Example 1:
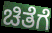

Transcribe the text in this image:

ಚಿತೆಗೆ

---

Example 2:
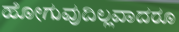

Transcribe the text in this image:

ಹೋಗುವುದಿಲ್ಲವಾದರೂ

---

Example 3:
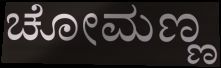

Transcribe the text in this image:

ಚೋಮಣ್ಣ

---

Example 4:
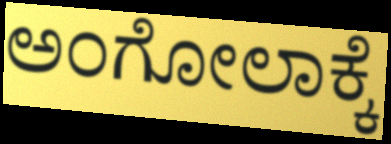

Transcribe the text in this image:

ಅಂಗೋಲಾಕ್ಕೆ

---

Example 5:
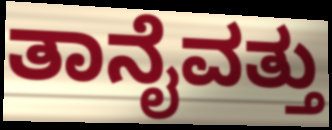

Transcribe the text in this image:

ತಾನೈವತ್ತು